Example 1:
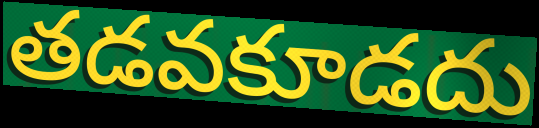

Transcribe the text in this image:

తడవకూడదు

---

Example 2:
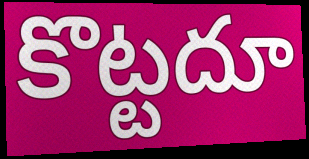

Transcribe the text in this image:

కొట్టదూ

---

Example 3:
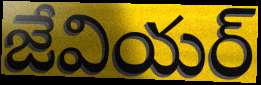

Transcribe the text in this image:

జేవియర్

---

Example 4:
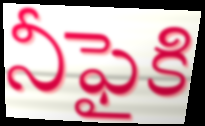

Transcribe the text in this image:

నీఫైకి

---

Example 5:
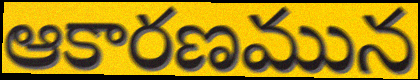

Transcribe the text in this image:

ఆకారణమున